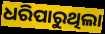
ଧରିପାରୁଥିଲା